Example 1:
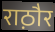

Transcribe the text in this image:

राठ़ौर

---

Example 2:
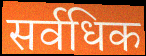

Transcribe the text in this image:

सर्वधिक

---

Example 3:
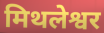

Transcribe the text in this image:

मिथलेश्वर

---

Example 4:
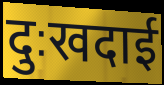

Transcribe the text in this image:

दुःखदाई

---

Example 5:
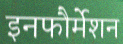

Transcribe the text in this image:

इनफौर्मेशन